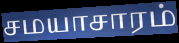
சமயாசாரம்